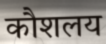
कौशलय